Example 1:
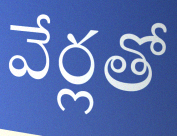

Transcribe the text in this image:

వేర్లతో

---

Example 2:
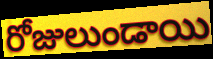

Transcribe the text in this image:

రోజులుండాయి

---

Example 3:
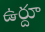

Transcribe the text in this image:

ఉర్దూ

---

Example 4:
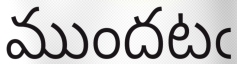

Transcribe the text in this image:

ముందటఁ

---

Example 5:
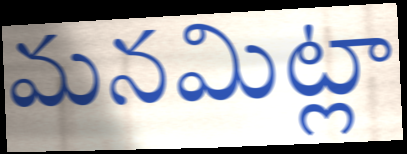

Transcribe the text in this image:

మనమిట్లా